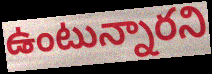
ఉంటున్నారని